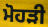
ਮੋਹੜੀ